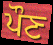
ਪੌਣ